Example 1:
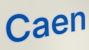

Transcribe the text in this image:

Caen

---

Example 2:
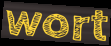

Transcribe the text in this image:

wort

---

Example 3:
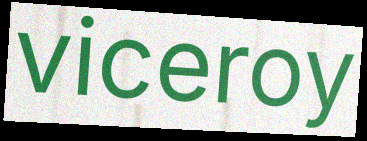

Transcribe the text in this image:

viceroy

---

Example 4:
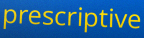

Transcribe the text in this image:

prescriptive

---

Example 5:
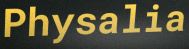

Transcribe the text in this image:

Physalia